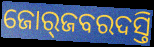
ଜୋର୍‍ଜବରଦସ୍ତି